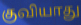
குவியாது